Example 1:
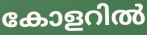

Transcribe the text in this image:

കോളറിൽ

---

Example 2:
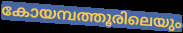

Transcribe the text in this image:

കോയമ്പത്തൂരിലെയും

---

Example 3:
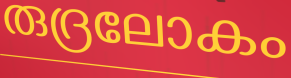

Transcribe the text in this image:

രുദ്രലോകം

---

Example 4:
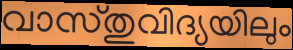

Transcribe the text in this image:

വാസ്തുവിദ്യയിലും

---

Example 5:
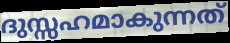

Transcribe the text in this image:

ദുസ്സഹമാകുന്നത്